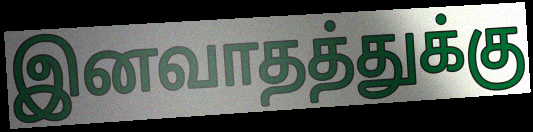
இனவாதத்துக்கு